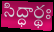
సిద్ధార్థః